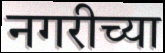
नगरीच्या